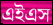
এইএস